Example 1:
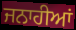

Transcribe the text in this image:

ਜਨਾਹੀਆਂ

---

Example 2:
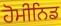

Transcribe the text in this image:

ਹੋਮੀਨਿਡ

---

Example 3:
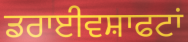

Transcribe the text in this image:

ਡਰਾਈਵਸ਼ਾਫਟਾਂ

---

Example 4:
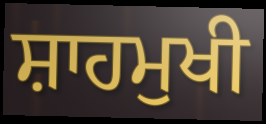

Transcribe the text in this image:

ਸ਼ਾਹਮੁਖੀ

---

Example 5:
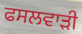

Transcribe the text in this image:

ਫਸਲਵਾੜੀ